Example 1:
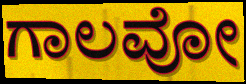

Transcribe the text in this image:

ಗಾಲವೋ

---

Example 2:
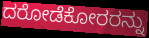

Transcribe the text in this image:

ದರೋಡೆಕೋರರನ್ನು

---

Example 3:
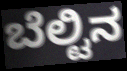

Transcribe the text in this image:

ಬೆಲ್ಟಿನ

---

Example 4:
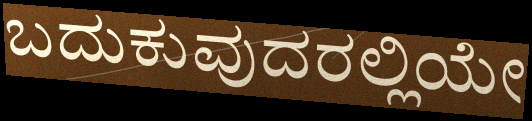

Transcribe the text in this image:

ಬದುಕುವುದರಲ್ಲಿಯೇ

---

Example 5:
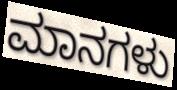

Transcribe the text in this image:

ಮಾನಗಳು